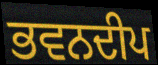
ਭਵਨਦੀਪ